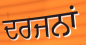
ਦਰਜਨਾਂ